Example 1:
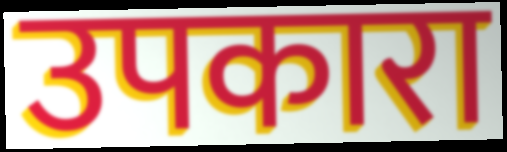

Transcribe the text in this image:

उपकारा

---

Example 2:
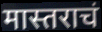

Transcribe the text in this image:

मास्तराचं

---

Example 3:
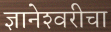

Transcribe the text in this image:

ज्ञानेश्वरीचा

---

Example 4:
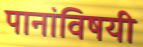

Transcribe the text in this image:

पानांविषयी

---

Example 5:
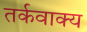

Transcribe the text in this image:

तर्कवाक्य